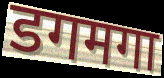
डगमगा